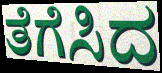
ತೆಗೆಸಿದ